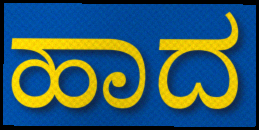
ಹಾದ